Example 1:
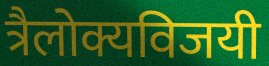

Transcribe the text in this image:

त्रैलोक्यविजयी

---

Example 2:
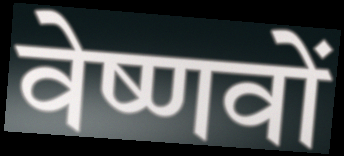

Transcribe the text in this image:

वेष्णवों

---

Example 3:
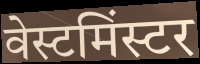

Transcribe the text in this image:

वेस्‍टमिंस्‍टर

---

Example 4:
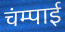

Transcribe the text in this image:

चंम्पाई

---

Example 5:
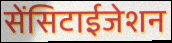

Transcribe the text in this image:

सेंसिटाईजेशन